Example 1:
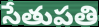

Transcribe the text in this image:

సేతుపతి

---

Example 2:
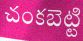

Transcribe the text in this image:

చంకబెట్టి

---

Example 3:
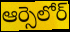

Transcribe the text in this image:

ఆర్సెలోర్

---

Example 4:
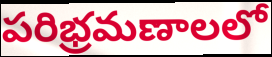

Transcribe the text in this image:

పరిభ్రమణాలలో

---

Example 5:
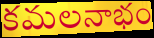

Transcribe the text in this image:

కమలనాభం